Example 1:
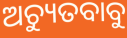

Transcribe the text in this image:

ଅଚ୍ୟୁତବାବୁ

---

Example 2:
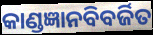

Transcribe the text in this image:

କାଣ୍ଡଜ୍ଞାନବିବର୍ଜିତ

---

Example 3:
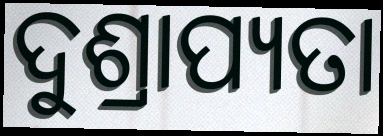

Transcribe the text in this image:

ଦୁଶ୍ରାପ୍ୟତା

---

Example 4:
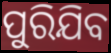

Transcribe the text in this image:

ପୁରିଯିବ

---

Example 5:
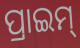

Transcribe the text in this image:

ପ୍ରାଇମ୍